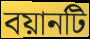
বয়ানটি